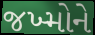
જખ્મોને